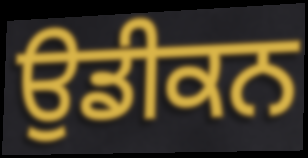
ਉਡੀਕਨ